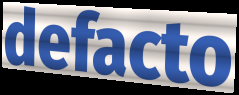
defacto